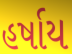
હર્ષાય